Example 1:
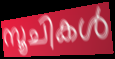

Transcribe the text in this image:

സൂചികൾ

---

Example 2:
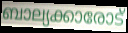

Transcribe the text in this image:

ബാല്യക്കാരോട്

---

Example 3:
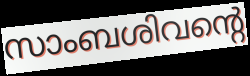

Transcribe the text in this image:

സാംബശിവന്റെ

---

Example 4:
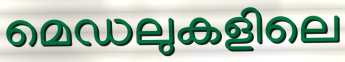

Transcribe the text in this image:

മെഡലുകളിലെ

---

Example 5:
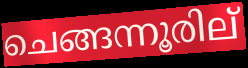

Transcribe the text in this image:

ചെങ്ങന്നൂരില്